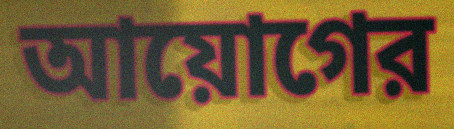
আয়োগের